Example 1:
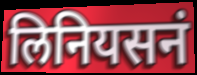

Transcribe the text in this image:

लिनियसनं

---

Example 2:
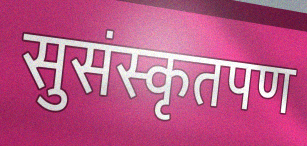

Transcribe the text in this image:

सुसंस्कृतपण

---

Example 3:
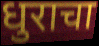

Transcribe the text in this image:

धुराचा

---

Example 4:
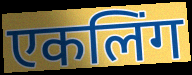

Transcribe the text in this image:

एकलिंग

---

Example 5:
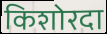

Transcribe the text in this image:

किशोरदा